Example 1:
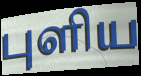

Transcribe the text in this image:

புளிய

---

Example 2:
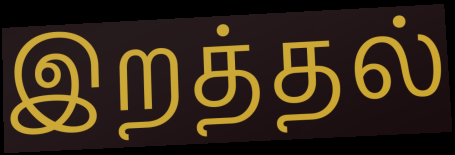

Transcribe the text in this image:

இறத்தல்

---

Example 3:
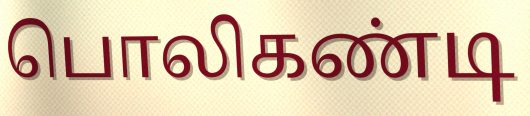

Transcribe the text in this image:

பொலிகண்டி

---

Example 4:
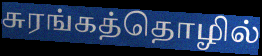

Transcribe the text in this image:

சுரங்கத்தொழில்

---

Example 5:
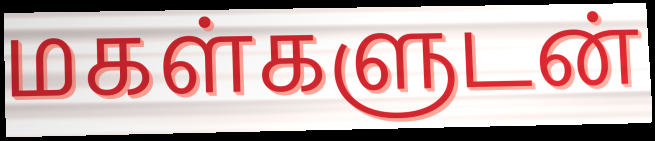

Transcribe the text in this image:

மகள்களுடன்